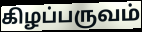
கிழப்பருவம்